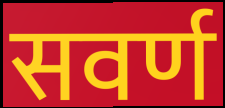
सवर्ण